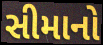
સીમાનો